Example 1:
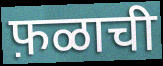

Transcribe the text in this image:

फ़ळाची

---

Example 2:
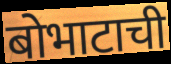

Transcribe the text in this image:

बोभाटाची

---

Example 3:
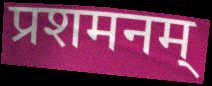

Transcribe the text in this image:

प्रशमनम्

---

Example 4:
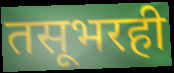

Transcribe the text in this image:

तसूभरही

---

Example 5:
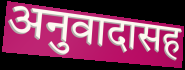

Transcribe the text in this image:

अनुवादासह